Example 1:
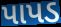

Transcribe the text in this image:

પાપડ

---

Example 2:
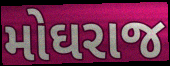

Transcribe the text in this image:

મોઘરાજ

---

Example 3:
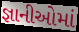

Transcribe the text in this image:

જ્ઞાનીઓમાં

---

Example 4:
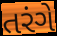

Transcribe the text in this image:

તરંગે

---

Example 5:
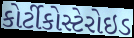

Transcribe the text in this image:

કોર્ટીકોસ્ટેરોઇડ